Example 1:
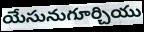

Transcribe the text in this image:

యేసునుగూర్చియు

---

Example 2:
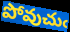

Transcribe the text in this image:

పోవుచుఁ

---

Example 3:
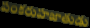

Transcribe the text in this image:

పంకరుహజాతుడు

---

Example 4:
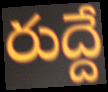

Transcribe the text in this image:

రుద్దే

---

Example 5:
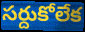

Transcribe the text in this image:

సర్దుకోలేక